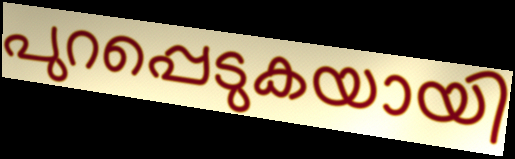
പുറപ്പെടുകയായി